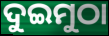
ଦୁଇମୁଠା